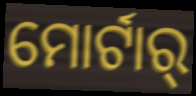
ମୋର୍ଟାର୍